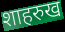
शाहरुख